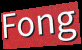
Fong